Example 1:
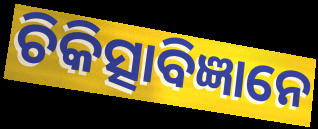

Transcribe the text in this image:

ଚିକିତ୍ସାବିଜ୍ଞାନେ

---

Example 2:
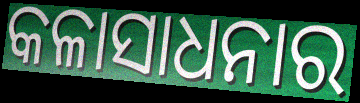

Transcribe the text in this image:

କଳାସାଧନାର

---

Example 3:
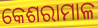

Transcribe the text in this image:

କେଶରାମାଳ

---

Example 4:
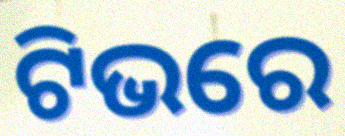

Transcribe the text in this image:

ଟିଭରେ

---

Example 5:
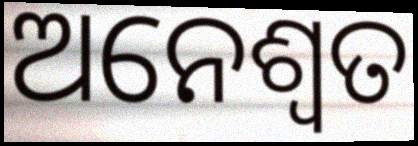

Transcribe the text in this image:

ଅନେଶ୍ଵତ